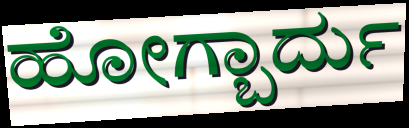
ಹೋಗ್ಬಾರ್ದು